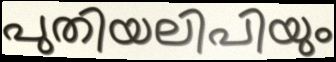
പുതിയലിപിയും